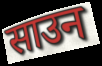
साउन